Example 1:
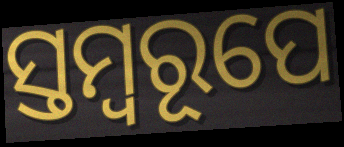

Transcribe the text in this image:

ସ୍ତମ୍ବରୂପେ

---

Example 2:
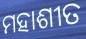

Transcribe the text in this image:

ମହାଶୀତ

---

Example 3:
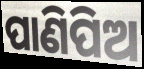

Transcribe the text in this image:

ପାଣିପିଅ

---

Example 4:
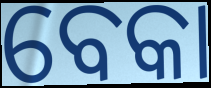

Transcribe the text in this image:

ବେକା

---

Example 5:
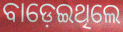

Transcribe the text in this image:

ବାଡ଼େଇଥିଲେ